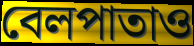
বেলপাতাও